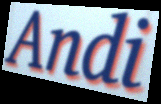
Andi